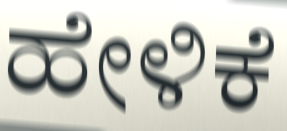
ಹೇಳಿಕೆ